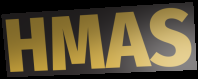
HMAS